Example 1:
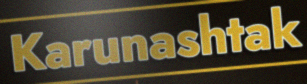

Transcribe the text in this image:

Karunashtak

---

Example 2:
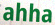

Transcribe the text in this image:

ahha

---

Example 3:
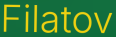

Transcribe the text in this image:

Filatov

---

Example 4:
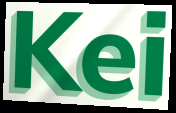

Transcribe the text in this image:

Kei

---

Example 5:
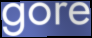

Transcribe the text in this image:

gore